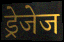
ड्रेजेज